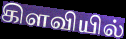
கிளவியில்